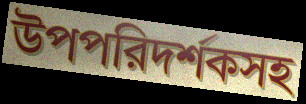
উপপরিদর্শকসহ